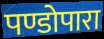
पण्डोपारा